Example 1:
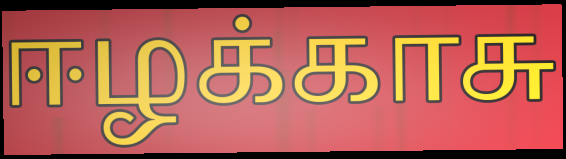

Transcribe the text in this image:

ஈழக்காசு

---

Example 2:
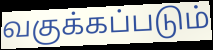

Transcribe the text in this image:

வகுக்கப்படும்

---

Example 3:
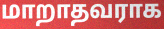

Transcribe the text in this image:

மாறாதவராக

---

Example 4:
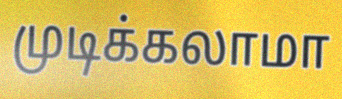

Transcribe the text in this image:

முடிக்கலாமா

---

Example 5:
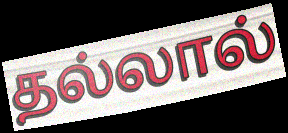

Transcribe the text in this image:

தல்லால்